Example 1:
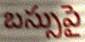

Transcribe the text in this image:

బస్సుపై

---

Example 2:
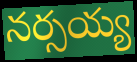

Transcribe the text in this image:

నర్సయ్య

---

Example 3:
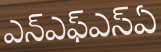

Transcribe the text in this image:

ఎన్ఎఫ్ఎస్ఏ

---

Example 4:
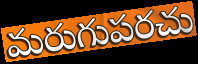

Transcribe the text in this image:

మరుగుపరచు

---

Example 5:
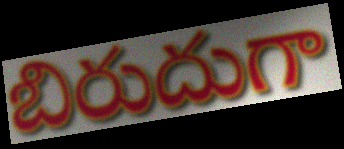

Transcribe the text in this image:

బిరుదుగా